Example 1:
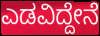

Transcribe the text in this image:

ಎಡವಿದ್ದೇನೆ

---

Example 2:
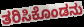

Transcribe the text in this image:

ತರಿಸಿಕೊಂಡನು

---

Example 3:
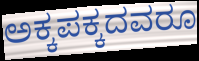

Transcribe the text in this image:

ಅಕ್ಕಪಕ್ಕದವರೂ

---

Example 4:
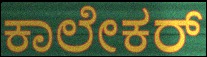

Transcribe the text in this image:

ಕಾಲೇಕರ್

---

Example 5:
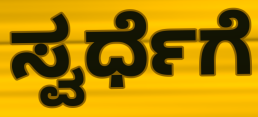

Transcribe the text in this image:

ಸ್ವರ್ಧೆಗೆ